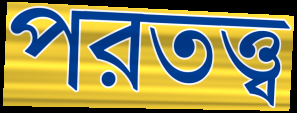
পরতত্ত্ব